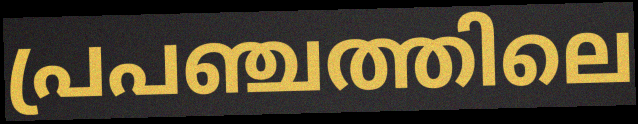
പ്രപഞ്ചത്തിലെ